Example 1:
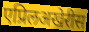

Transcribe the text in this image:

एप्रिलअखेरीस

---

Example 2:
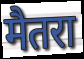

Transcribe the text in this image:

मैतरा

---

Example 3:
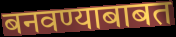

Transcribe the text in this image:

बनवण्याबाबत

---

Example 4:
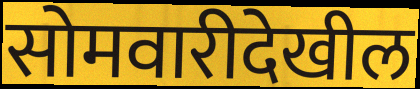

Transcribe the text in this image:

सोमवारीदेखील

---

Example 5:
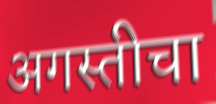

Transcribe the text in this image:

अगस्तीचा